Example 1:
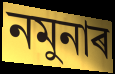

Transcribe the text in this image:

নমুনাৰ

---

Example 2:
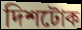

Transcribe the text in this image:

দিশটোক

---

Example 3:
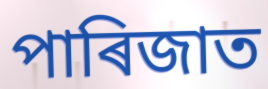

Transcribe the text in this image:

পাৰিজাত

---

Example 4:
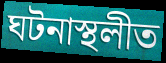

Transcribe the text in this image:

ঘটনাস্থলীত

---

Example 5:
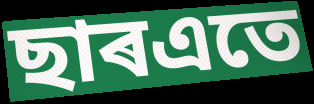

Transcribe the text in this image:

ছাৰএতে